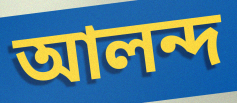
আলন্দ